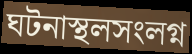
ঘটনাস্থলসংলগ্ন